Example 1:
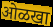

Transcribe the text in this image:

ओळखा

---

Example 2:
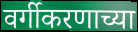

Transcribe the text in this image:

वर्गीकरणाच्या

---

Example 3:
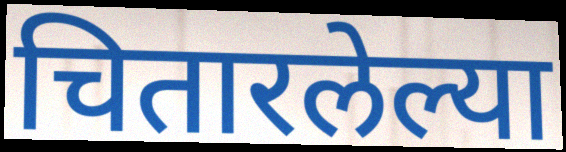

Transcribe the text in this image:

चितारलेल्या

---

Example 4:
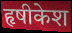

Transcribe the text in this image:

हृषीकेश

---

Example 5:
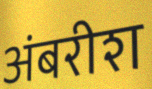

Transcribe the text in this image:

अंबरीश